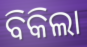
ବିକିଲା